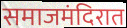
समाजमंदिरात